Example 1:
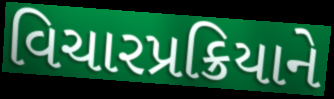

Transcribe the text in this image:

વિચારપ્રક્રિયાને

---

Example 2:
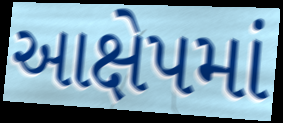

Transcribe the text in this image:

આક્ષેપમાં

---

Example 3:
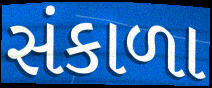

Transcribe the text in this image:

સંકાળા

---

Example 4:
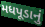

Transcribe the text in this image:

મધપૂડાનું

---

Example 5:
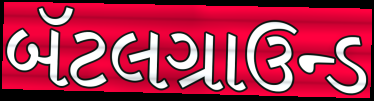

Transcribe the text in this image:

બૅટલગ્રાઉન્ડ